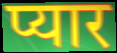
प्‍यार